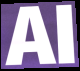
AI